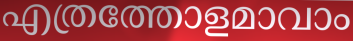
എത്രത്തോളമാവാം